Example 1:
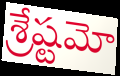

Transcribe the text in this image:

శ్రేష్టమో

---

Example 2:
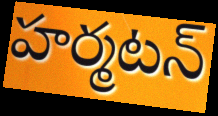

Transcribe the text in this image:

హర్మటన్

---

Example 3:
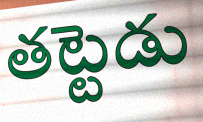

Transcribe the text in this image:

తట్టెడు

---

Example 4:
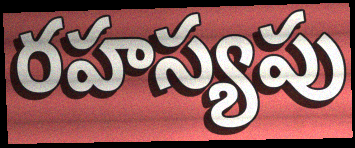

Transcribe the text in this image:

రహస్యపు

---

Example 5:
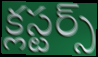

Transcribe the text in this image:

క్లస్టర్స్